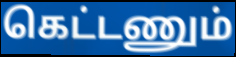
கெட்டணும்